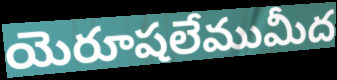
యెరూషలేముమీద